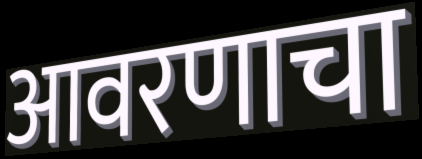
आवरणाचा